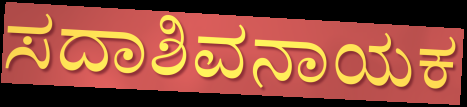
ಸದಾಶಿವನಾಯಕ